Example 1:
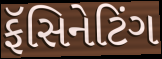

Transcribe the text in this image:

ફૅસિનેટિંગ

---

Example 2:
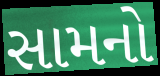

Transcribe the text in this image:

સામનો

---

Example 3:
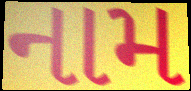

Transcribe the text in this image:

નામ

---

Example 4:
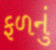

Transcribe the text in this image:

ફળનું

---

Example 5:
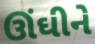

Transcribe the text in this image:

ઊંઘીને